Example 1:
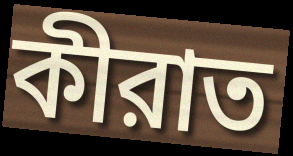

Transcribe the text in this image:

কীরাত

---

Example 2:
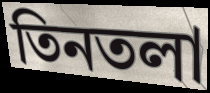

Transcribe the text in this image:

তিনতলা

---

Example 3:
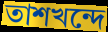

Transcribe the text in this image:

তাশখন্দে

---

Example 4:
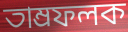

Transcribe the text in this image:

তাম্রফলক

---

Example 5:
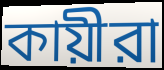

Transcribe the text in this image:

কায়ীরা